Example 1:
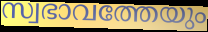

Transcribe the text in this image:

സ്വഭാവത്തേയും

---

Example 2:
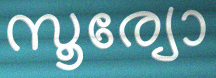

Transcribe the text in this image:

സൂര്യോ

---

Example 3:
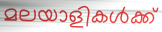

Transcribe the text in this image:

മലയാളികൾക്ക്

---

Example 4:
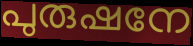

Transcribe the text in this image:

പുരുഷനേ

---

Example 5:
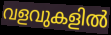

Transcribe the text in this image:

വളവുകളിൽ